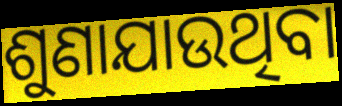
ଶୁଣାଯାଉଥିବା